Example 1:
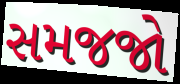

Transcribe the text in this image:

સમજજો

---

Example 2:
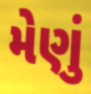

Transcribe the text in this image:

મેણું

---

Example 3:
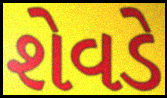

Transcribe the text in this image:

શેવડે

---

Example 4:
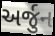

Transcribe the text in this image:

અર્જુન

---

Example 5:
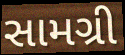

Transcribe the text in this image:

સામગ્રી